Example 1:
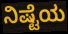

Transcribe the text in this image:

ನಿಷ್ಟೆಯ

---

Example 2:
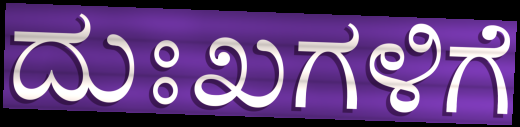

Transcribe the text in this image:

ದುಃಖಗಳಿಗೆ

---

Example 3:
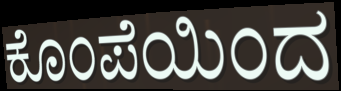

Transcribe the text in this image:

ಕೊಂಪೆಯಿಂದ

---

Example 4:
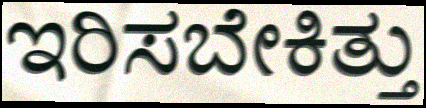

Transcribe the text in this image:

ಇರಿಸಬೇಕಿತ್ತು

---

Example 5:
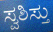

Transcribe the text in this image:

ಸ್ವಶಿಸ್ತು